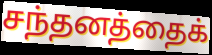
சந்தனத்தைக்